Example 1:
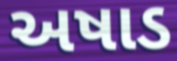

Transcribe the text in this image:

અષાડ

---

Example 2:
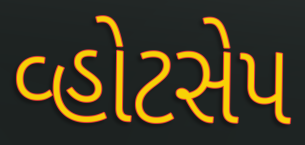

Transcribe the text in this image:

વ્હોટસેપ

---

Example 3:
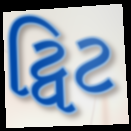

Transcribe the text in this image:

ટ્વિટ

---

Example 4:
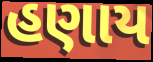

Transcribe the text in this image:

હણાય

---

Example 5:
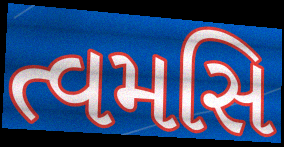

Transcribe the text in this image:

ત્વમસિ